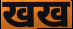
खख